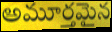
అమూర్తమైన